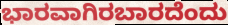
ಭಾರವಾಗಿರಬಾರದೆಂದು